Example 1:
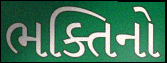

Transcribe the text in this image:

ભક્તિનો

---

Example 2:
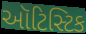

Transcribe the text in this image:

ઑટિસ્ટિક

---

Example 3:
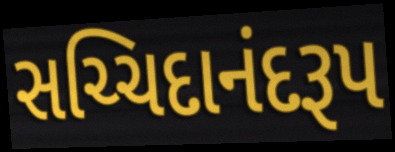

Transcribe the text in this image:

સચ્ચિદાનંદરૂપ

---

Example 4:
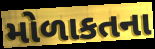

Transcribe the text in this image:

મોળાકતના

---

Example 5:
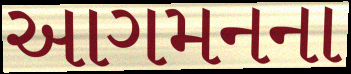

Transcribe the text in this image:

આગમનના